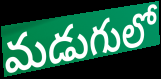
మడుగులో